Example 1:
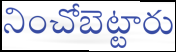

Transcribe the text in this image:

నించోబెట్టారు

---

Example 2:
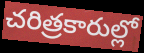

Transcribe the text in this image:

చరిత్రకారుల్లో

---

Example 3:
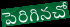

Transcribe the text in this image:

పెరిగినచో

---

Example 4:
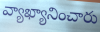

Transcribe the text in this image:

వ్యాఖ్యానించారు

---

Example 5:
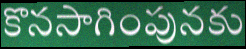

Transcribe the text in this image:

కొనసాగింపునకు